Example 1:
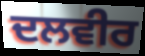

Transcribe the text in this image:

ਦਲਵੀਰ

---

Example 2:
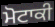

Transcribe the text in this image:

ਮੋਟਾਕੀ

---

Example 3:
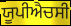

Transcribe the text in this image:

ਯੂਪੀਐਚਸੀ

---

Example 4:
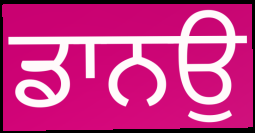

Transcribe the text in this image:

ਡਾਨਉ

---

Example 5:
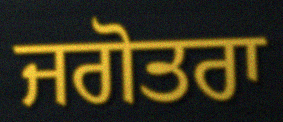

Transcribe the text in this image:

ਜਗੋਤਰਾ